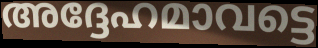
അദ്ദേഹമാവട്ടെ